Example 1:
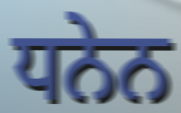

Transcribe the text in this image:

ਧਨੇਨ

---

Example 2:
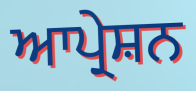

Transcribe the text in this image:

ਆਪ੍ਰੇਸ਼ਨ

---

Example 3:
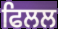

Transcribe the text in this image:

ਫਿਲਲ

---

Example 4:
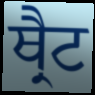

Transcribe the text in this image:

ਥ੍ਰੈਟ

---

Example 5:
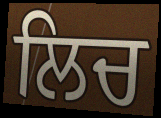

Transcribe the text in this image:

ਲਿਚ